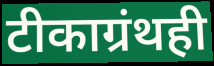
टीकाग्रंथही